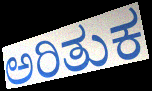
ಅರಿತುಕ